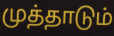
முத்தாடும்